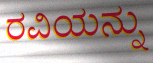
ರವಿಯನ್ನು